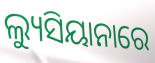
ଲ୍ୟୁସିୟାନାରେ